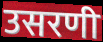
उसरणी